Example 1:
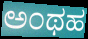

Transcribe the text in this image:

ಅಂಥಹ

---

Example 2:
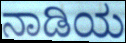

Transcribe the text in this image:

ನಾಡಿಯ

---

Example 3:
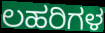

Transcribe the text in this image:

ಲಹರಿಗಳ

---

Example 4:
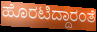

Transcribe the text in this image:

ಹೊರಟಿದ್ದಾರಂತೆ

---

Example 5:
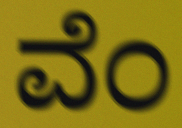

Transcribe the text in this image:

ವೆಂ